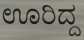
ಊರಿದ್ದ